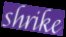
shrike